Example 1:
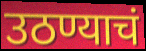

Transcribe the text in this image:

उठण्याचं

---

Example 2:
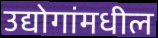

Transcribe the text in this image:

उद्योगांमधील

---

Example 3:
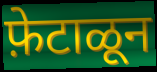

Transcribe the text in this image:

फ़ेटाळून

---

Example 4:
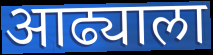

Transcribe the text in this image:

आढ्याला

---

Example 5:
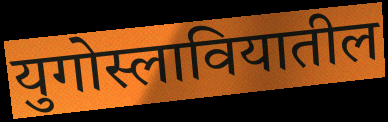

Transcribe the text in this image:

युगोस्लावियातील